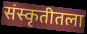
संस्कृतीतला